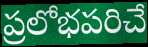
ప్రలోభపరిచే